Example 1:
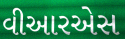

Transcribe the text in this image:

વીઆરએસ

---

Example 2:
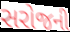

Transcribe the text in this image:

સરોજની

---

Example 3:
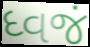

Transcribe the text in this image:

ધ્વજં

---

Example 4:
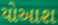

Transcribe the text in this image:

યોઆશ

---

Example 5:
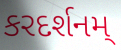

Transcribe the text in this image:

કરદર્શનમ્